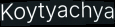
Koytyachya